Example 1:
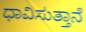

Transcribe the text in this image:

ಧಾವಿಸುತ್ತಾನೆ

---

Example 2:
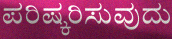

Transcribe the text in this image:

ಪರಿಷ್ಕರಿಸುವುದು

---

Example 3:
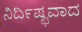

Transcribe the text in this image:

ನಿರ್ದಿಷ್ಟವಾದ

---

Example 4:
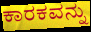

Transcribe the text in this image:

ಕಾರಕವನ್ನು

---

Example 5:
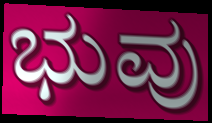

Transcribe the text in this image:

ಭುವು